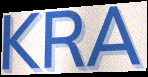
KRA